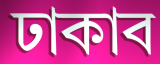
ঢাকাব